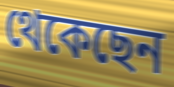
থেকেছেন